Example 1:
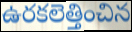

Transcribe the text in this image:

ఉరకలెత్తించిన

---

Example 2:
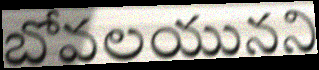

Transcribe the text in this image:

బోవలయునని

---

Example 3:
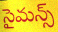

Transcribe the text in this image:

సైమన్స్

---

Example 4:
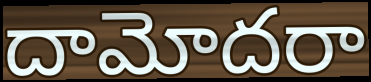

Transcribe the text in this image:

దామోదరా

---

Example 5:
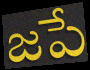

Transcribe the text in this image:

జపే